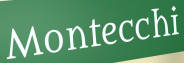
Montecchi